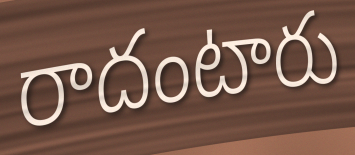
రాదంటారు